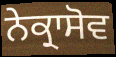
ਨੇਕ੍ਰਾਸੋਵ